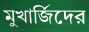
মুখার্জিদের